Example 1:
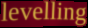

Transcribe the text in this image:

levelling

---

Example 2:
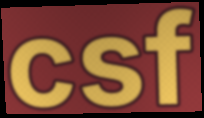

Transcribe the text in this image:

csf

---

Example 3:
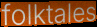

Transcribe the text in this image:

folktales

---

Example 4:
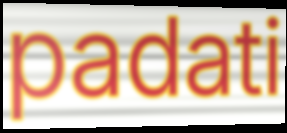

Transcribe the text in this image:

padati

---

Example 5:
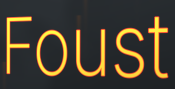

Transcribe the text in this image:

Foust